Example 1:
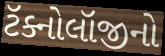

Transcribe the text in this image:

ટૅક્નોલૉજીનો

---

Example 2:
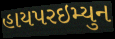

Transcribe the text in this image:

હાયપરઇમ્યુન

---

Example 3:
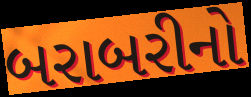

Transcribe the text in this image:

બરાબરીનો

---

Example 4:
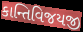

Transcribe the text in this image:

કાન્તિવિજયજી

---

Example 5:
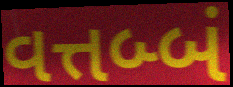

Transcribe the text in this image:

વત્તબ્બં